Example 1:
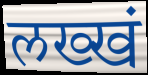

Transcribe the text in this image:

लख्खं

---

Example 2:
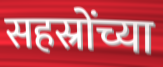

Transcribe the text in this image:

सहस्रोंच्या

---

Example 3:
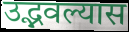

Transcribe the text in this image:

उद्भवल्यास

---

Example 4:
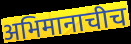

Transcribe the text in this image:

अभिमानाचीच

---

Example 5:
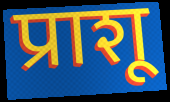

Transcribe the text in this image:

प्राशू